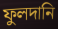
ফুলদানি